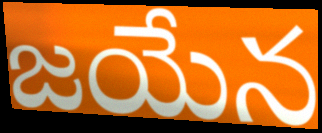
జయేన